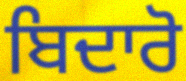
ਬਿਦਾਰੋ